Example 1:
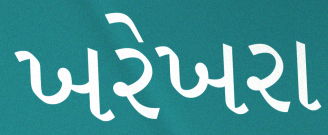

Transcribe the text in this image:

ખરેખરા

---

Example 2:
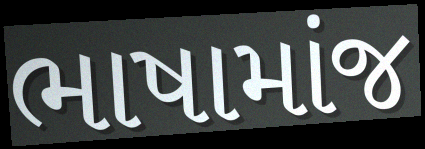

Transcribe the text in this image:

ભાષામાંજ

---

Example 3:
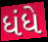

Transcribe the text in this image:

ધંધે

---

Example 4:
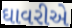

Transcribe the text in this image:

ઘાવરીએ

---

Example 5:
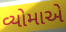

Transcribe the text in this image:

વ્યોમાએ